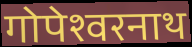
गोपेश्वरनाथ